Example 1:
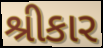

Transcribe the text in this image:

શ્રીકાર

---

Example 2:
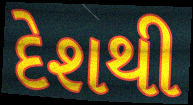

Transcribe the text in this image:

દેશથી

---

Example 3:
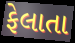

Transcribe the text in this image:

ફેલાતા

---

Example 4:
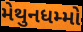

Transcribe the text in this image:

મેથુનધમ્મો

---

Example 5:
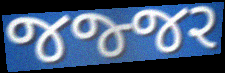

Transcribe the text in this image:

જજ્જર